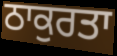
ਠਾਕੁਰਤਾ